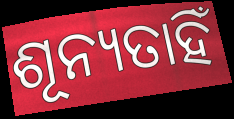
ଶୂନ୍ୟତାହିଁ